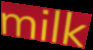
milk